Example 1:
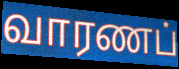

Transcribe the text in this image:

வாரணப்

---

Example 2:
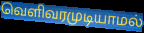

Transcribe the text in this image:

வெளிவரமுடியாமல்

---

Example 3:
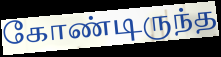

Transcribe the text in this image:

கோண்டிருந்த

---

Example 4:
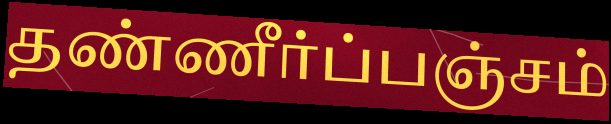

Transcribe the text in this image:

தண்ணீர்ப்பஞ்சம்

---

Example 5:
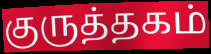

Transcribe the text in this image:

குருத்தகம்